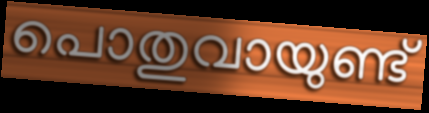
പൊതുവായുണ്ട്